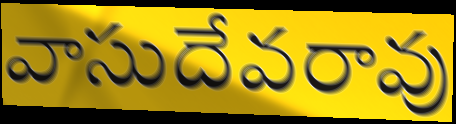
వాసుదేవరావు